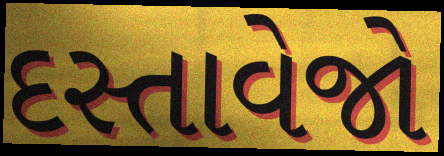
દસ્તાવેજો